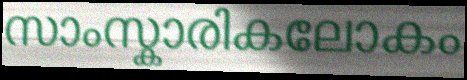
സാംസ്കാരികലോകം